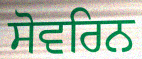
ਸੋਵਰਿਨ